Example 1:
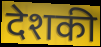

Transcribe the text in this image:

देशकी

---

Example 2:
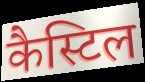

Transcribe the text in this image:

कैस्टिल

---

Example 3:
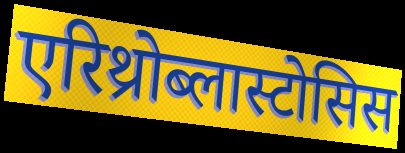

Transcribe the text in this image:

एरिथ्रोब्लास्टोसिस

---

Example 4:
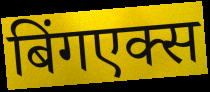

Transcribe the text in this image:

बिंगएक्स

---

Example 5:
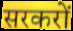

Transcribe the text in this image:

सरकरों